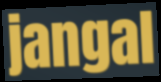
jangal